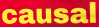
causal